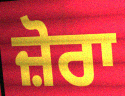
ਜ਼ੋਰਾ